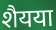
शैयया